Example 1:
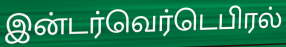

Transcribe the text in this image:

இன்டர்வெர்டெபிரல்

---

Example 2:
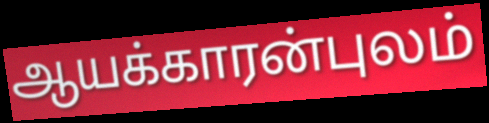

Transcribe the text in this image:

ஆயக்காரன்புலம்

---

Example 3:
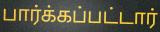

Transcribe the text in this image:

பார்க்கப்பட்டார்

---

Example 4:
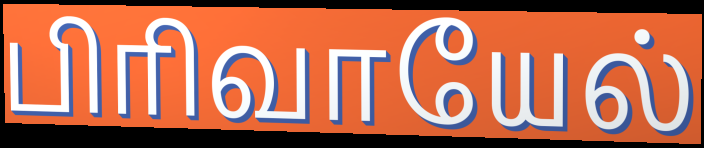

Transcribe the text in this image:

பிரிவாயேல்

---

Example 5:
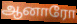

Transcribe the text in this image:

ஆனாரோ